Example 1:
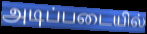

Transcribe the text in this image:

அடிப்படையில்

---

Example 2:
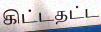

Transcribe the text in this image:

கிட்டதட்ட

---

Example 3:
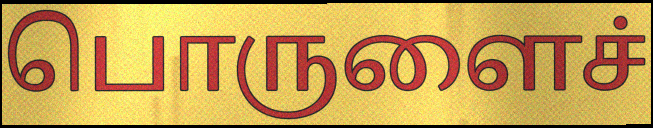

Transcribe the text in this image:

பொருளைச்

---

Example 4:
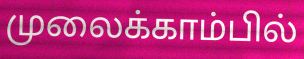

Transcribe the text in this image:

முலைக்காம்பில்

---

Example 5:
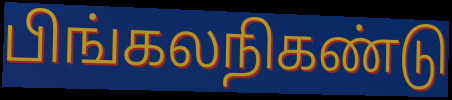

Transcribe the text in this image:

பிங்கலநிகண்டு